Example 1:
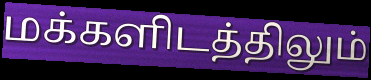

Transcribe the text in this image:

மக்களிடத்திலும்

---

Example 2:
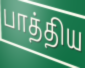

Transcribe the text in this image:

பாத்திய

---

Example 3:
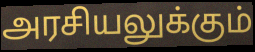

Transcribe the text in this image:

அரசியலுக்கும்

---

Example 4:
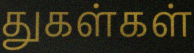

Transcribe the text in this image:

துகள்கள்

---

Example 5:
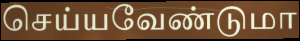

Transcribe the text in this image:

செய்யவேண்டுமா